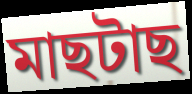
মাছটাছ